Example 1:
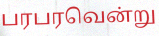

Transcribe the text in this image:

பரபரவென்று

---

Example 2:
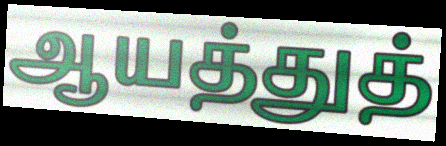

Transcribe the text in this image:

ஆயத்துத்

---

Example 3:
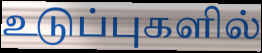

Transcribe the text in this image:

உடுப்புகளில்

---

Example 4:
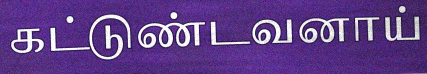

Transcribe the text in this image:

கட்டுண்டவனாய்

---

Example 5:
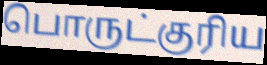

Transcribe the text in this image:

பொருட்குரிய